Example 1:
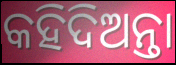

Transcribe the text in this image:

କହିଦିଅନ୍ତା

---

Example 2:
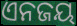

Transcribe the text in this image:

ଏନଜୟ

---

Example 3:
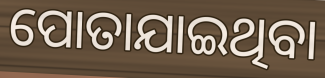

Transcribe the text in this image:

ପୋତାଯାଇଥିବା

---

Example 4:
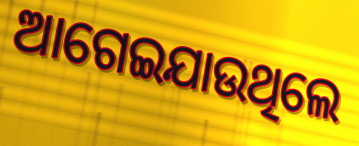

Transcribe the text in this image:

ଆଗେଇଯାଉଥିଲେ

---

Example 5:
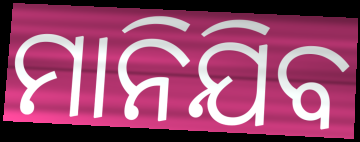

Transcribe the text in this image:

ମାନିଯିବ